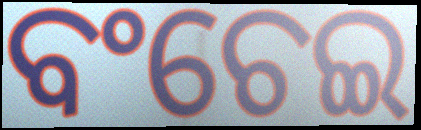
ବଂଚେଇ